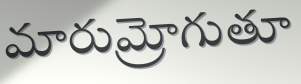
మారుమ్రోగుతూ